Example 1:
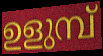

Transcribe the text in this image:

ഉളുമ്പ്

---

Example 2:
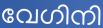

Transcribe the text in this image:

വേഗിനി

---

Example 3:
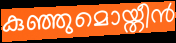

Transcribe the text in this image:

കുഞ്ഞുമൊയ്തീൻ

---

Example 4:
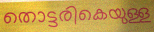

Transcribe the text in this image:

തൊട്ടരികെയുള്ള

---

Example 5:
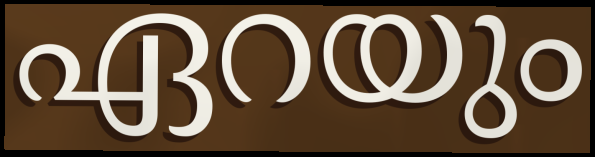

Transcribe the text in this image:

ഏറയും